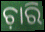
ଚ଼ାରି